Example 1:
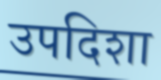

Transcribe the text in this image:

उपदिशा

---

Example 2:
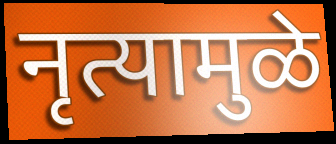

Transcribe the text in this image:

नृत्यामुळे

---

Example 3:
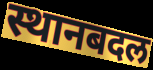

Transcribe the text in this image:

स्थानबदल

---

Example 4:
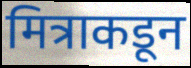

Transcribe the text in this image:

मित्राकडून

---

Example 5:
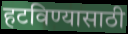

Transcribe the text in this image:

हटविण्यासाठी